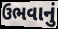
ઉભવાનું